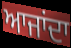
ਆਜਾਂਦਾ